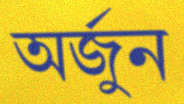
অৰ্জুন